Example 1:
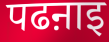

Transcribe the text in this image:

पढऩाइ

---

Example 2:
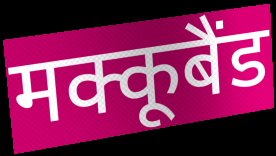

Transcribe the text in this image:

मक्कूबैंड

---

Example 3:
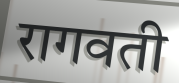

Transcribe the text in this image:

रागवती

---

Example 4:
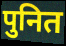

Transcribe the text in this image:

पुनित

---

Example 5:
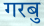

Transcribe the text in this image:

गरबु